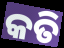
କତି